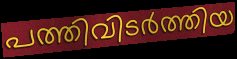
പത്തിവിടർത്തിയ